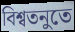
বিশ্বতনুতে